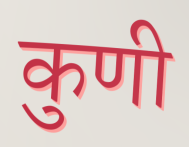
कुणी